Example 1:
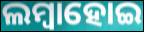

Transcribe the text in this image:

ଲମ୍ୱାହୋଇ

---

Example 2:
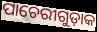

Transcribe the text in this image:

ପାଚେରୀଗୁଡ଼ାକ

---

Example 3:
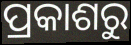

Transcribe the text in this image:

ପ୍ରକାଶରୁ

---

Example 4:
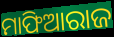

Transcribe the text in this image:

ମାଫିଆରାଜ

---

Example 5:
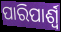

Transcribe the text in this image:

ପାରିପାର୍ଶ୍ୱ